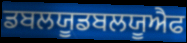
ਡਬਲਯੂਡਬਲਯੂਐਫ